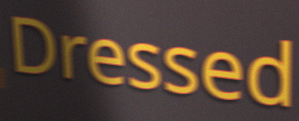
Dressed